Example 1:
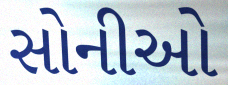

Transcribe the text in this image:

સોનીઓ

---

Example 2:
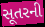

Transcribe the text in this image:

સૂતરની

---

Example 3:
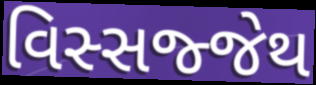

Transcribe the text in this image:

વિસ્સજ્જેથ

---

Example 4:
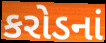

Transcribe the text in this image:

કરોડનાં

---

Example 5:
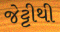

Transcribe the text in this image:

જેટ્ટીથી